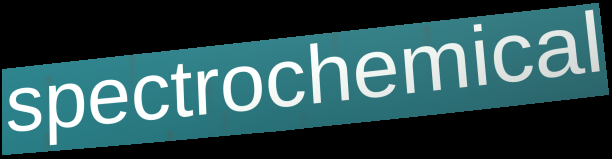
spectrochemical